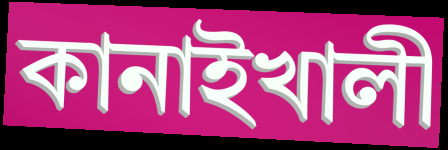
কানাইখালী